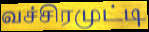
வச்சிரமுட்டி